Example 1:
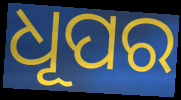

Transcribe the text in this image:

ଧୂପର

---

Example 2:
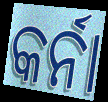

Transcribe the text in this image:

କର୍ନା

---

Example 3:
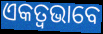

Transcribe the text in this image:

ଏକତ୍ଵଭାବେ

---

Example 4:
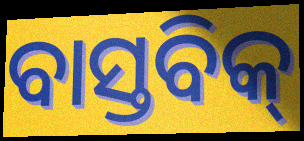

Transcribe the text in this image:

ବାସ୍ତବିକ୍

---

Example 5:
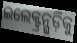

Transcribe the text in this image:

ଇଲେକ୍ଟ୍ରନ୍ଗୁଡ଼ିକୁ